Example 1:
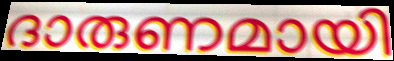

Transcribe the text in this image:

ദാരുണമായി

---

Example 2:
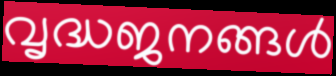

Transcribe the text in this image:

വൃദ്ധജനങ്ങൾ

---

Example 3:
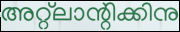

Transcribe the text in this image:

അറ്റ്ലാന്റിക്കിനു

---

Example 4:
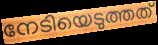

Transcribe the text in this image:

നേടിയെടുത്തത്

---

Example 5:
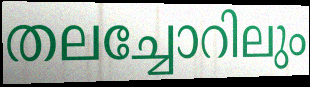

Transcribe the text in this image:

തലച്ചോറിലും